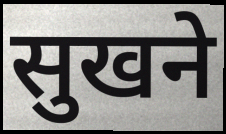
सुखने